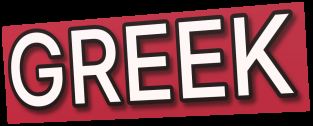
GREEK